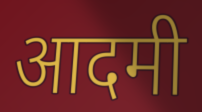
आदमी